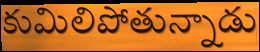
కుమిలిపోతున్నాడు